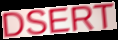
DSERT